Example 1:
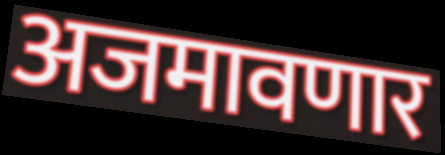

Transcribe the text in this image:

अजमावणार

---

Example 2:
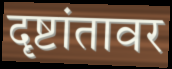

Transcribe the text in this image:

दृष्टांतावर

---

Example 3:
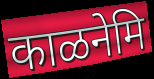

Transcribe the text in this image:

काळनेमि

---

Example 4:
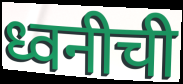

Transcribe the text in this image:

ध्वनीची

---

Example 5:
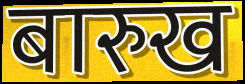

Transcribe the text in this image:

बारुख